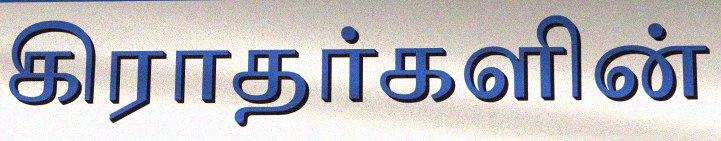
கிராதர்களின்